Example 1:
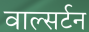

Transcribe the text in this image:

वाल्सर्टन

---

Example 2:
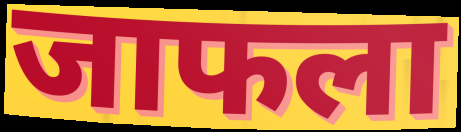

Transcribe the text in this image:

जाफला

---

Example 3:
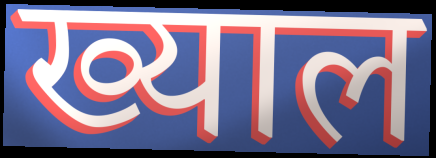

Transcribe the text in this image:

ख्याल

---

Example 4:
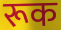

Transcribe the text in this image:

रूक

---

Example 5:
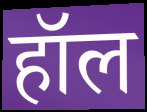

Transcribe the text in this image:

हॉल